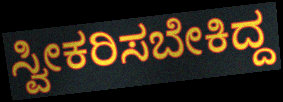
ಸ್ವೀಕರಿಸಬೇಕಿದ್ದ